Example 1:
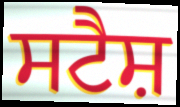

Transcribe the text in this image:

ਸਟੈਸ਼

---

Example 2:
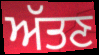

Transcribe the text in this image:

ਅੱਤਣ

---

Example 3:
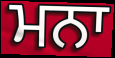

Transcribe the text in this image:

ਮਨਾ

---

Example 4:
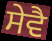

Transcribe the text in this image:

ਸੇਵੈ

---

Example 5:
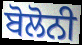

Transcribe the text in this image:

ਬੋਲੋਨੀ